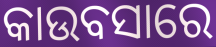
କାଉବସାରେ